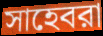
সাহেবরা